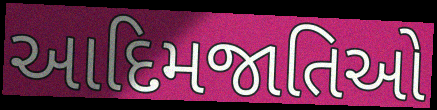
આદિમજાતિઓ